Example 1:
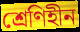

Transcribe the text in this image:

শ্রেণিহীন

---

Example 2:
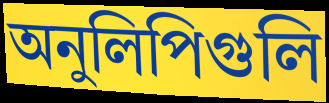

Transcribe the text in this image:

অনুলিপিগুলি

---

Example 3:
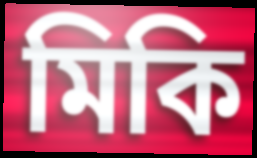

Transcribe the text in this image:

মিকি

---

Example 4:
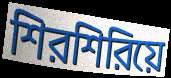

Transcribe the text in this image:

শিরশিরিয়ে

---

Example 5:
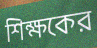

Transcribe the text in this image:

শিক্ষকের